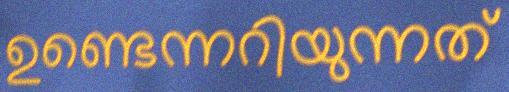
ഉണ്ടെന്നറിയുന്നത്